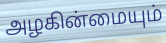
அழகின்மையும்